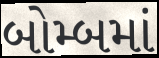
બોમ્બમાં